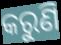
କରୁଣି